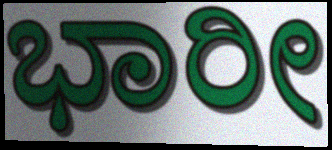
ಭಾರೀ